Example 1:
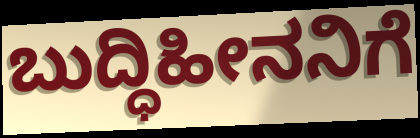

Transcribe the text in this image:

ಬುದ್ಧಿಹೀನನಿಗೆ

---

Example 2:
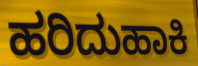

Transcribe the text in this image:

ಹರಿದುಹಾಕಿ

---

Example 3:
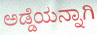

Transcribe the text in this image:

ಅಡ್ಡೆಯನ್ನಾಗಿ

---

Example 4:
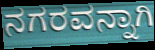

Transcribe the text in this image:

ನಗರವನ್ನಾಗಿ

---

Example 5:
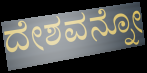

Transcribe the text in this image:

ದೇಶವನ್ನೋ